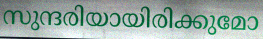
സുന്ദരിയായിരിക്കുമോ